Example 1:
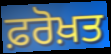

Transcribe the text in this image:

ਫ਼ਰੋਖ਼ਤ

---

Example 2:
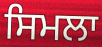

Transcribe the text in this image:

ਸਿਮਲਾ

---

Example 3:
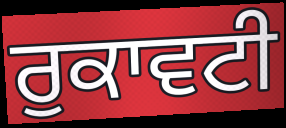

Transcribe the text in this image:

ਰੁਕਾਵਟੀ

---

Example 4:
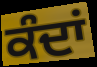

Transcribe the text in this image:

ਕੰਦਾਂ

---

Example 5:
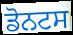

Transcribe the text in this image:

ਡੋਨਟਸ